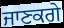
ਜਾਣਕਗੇ